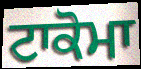
ਟਾਕੋਮਾ